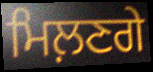
ਮਿਲ਼ਣਗੇ